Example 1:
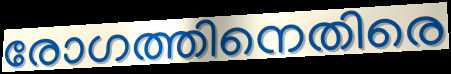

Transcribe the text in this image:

രോഗത്തിനെതിരെ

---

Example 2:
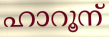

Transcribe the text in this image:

ഹാറൂന്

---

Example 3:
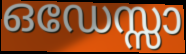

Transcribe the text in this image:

ഒഡേസ്സാ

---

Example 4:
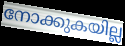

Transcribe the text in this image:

നോക്കുകയില്ല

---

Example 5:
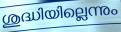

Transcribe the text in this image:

ശുദ്ധിയില്ലെന്നും